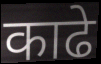
काढे